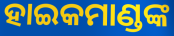
ହାଇକମାଣ୍ଡଙ୍କ